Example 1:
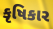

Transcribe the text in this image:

કૃષિકાર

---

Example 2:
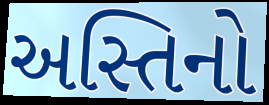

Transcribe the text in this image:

અસ્તિનો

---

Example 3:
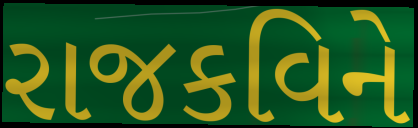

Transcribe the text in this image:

રાજકવિને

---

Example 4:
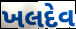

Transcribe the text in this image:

ખલદેવ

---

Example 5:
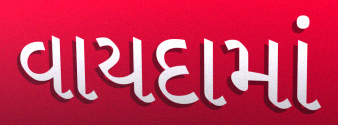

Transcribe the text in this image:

વાયદામાં